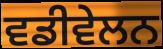
ਵਡੀਵੇਲਨ